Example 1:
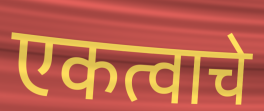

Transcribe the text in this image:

एकत्वाचे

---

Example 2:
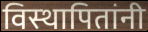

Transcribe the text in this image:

विस्थापितांनी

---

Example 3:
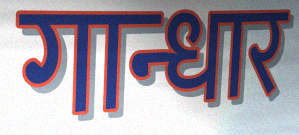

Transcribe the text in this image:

गान्धार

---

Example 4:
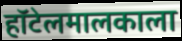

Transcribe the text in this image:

हॉटेलमालकाला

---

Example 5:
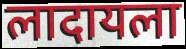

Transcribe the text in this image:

लादायला